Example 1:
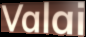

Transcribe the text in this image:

Valai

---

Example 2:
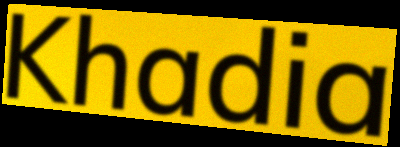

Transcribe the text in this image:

Khadia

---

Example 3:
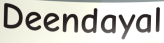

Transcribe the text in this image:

Deendayal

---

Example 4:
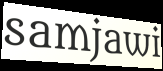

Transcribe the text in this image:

samjawi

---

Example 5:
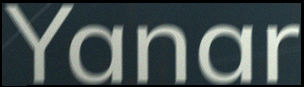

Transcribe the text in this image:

Yanar